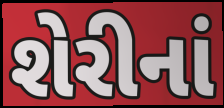
શેરીનાં